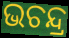
ଭଚନ୍ଦ୍ର